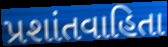
પ્રશાંતવાહિતા